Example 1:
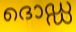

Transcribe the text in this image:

ദൊഡ്ഡ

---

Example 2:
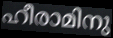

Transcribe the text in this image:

ഹീരാമിനു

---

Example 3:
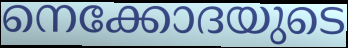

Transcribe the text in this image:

നെക്കോദയുടെ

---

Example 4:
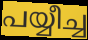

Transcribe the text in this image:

പയ്യീച്ച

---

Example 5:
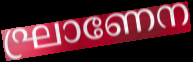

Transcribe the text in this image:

ഘ്രാണേന